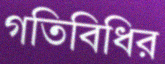
গতিবিধির